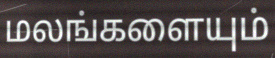
மலங்களையும்